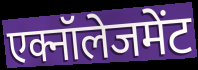
एक्नॉलेजमेंट